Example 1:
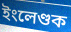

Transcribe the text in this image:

ইংলেণ্ডক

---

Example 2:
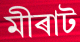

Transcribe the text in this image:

মীৰাট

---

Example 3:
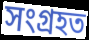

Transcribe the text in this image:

সংগ্ৰহত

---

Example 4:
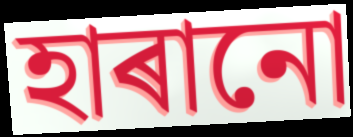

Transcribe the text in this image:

হাৰানো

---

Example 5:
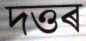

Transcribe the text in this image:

দত্তৰ